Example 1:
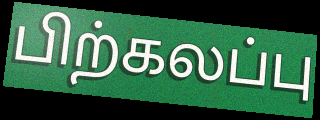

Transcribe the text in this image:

பிற்கலப்பு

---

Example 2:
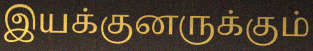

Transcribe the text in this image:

இயக்குனருக்கும்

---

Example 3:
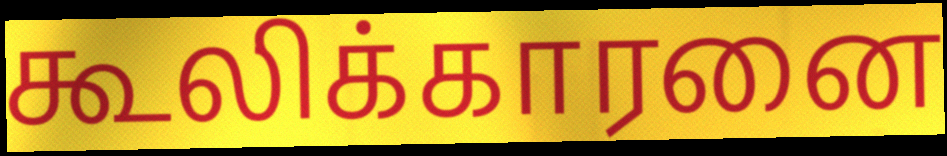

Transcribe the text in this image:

கூலிக்காரனை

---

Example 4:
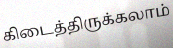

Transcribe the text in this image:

கிடைத்திருக்கலாம்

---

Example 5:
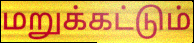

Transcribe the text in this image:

மறுக்கட்டும்